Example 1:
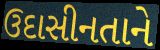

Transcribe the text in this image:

ઉદાસીનતાને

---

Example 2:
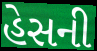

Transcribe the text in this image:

હેસની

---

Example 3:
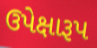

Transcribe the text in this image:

ઉપેક્ષારૂપ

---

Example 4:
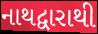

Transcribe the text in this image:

નાથદ્વારાથી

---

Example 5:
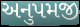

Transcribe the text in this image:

અનુપમજી